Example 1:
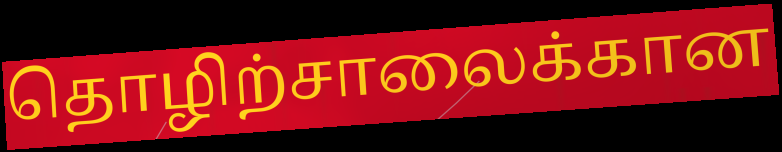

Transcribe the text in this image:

தொழிற்சாலைக்கான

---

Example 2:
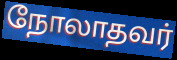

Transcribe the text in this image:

நோலாதவர்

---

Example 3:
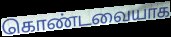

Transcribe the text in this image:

கொண்டவையாக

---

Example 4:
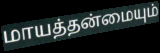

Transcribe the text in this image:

மாயத்தன்மையும்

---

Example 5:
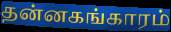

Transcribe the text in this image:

தன்னகங்காரம்